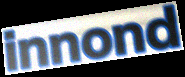
innond